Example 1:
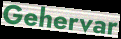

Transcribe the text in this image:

Gehervar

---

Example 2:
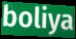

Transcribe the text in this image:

boliya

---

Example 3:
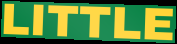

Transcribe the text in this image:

LITTLE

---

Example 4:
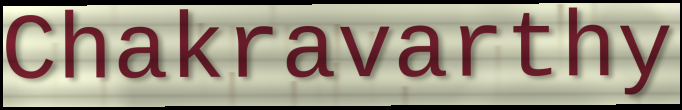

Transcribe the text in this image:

Chakravarthy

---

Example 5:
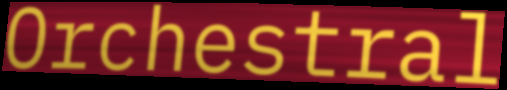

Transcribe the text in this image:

Orchestral